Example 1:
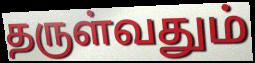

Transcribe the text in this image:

தருள்வதும்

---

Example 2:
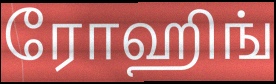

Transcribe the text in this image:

ரோஹிங்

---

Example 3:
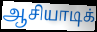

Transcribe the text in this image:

ஆசியாடிக்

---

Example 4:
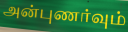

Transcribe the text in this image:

அன்புணர்வும்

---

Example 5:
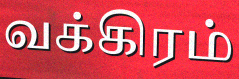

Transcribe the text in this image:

வக்கிரம்